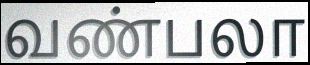
வண்பலா